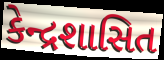
કેન્દ્રશાસિત